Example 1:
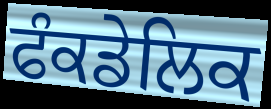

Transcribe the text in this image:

ਫੰਕਡੇਲਿਕ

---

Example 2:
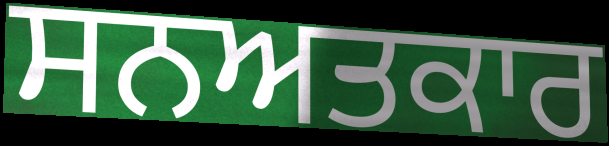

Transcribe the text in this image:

ਸਨਅਤਕਾਰ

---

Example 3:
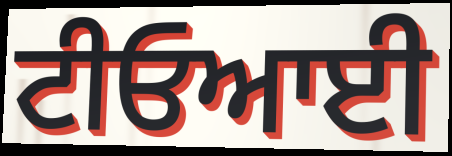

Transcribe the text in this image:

ਟੀਓਆਈ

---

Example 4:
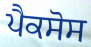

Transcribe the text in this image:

ਪੈਕਸੋਸ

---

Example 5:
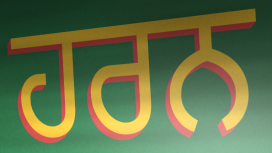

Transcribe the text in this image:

ਹਰਨ